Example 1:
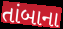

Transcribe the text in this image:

તાંબાના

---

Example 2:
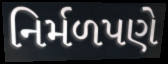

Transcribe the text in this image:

નિર્મળપણે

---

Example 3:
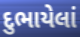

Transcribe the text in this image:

દુભાયેલાં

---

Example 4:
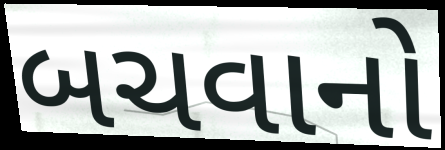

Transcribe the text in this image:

બચવાનો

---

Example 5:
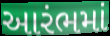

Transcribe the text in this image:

આરંભમાં